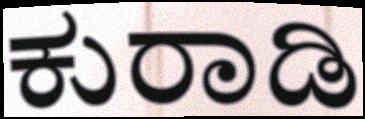
ಕುರಾಡಿ